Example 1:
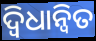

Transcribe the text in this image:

ଦ୍ଵିଧାନ୍ୱିତ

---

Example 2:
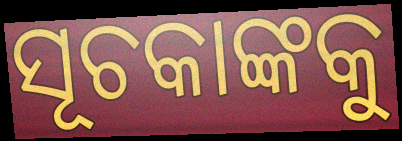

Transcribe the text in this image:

ସୂଚକାଙ୍କକୁ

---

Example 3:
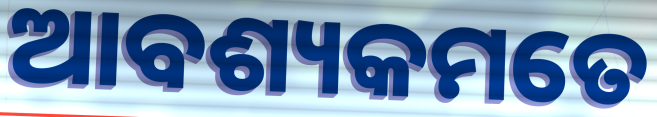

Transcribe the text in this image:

ଆବଶ୍ୟକମତେ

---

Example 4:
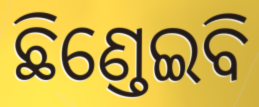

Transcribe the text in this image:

ଛିଣ୍ଡେଇବି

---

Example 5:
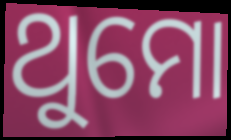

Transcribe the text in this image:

ଥୁମୋ